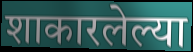
शाकारलेल्या